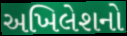
અખિલેશનો